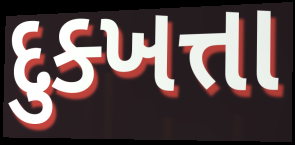
દુક્ખત્તા